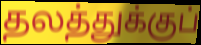
தலத்துக்குப்